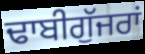
ਢਾਬੀਗੁੱਜਰਾਂ